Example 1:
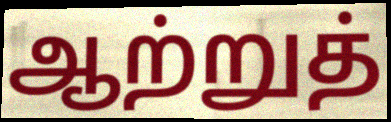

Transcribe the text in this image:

ஆற்றுத்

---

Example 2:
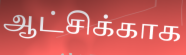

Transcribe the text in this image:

ஆட்சிக்காக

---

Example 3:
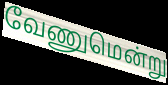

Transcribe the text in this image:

வேணுமென்று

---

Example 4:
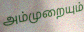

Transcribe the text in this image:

அம்முறையும்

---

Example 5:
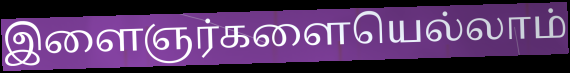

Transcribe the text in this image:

இளைஞர்களையெல்லாம்